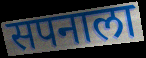
सपनाला